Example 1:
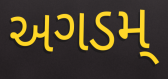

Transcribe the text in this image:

અગડમ્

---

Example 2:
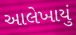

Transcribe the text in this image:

આલેખાયું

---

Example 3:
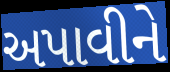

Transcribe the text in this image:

અપાવીને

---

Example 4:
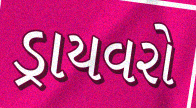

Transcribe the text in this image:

ડ્રાયવરો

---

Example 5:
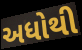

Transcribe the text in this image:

અધોથી